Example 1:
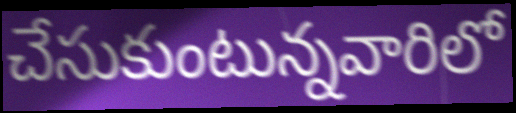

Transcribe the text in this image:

చేసుకుంటున్నవారిలో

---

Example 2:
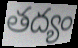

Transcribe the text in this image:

తద్యం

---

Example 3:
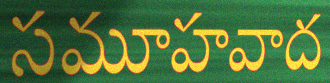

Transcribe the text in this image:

సమూహవాద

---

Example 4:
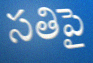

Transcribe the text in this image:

సతిపై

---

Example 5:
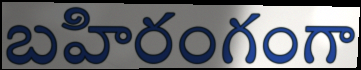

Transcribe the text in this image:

బహిరంగంగా